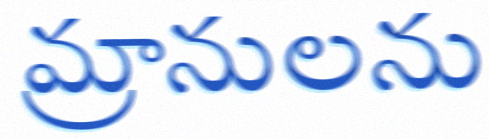
మ్రానులను